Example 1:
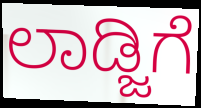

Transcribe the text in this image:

ಲಾಡ್ಜಿಗೆ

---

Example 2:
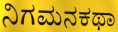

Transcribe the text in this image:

ನಿಗಮನಕಥಾ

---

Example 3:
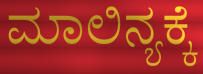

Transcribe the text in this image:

ಮಾಲಿನ್ಯಕ್ಕೆ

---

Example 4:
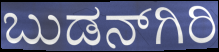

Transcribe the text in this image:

ಬುಡನ್‍ಗಿರಿ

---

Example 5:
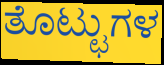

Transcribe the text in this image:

ತೊಟ್ಟುಗಳ